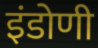
इंडोणी